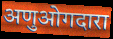
अणुओगदारा